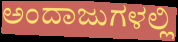
ಅಂದಾಜುಗಳಲ್ಲಿ